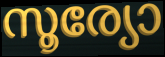
സൂര്യോ